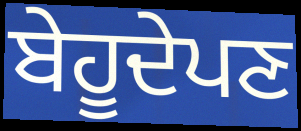
ਬੇਹੂਦੇਪਣ